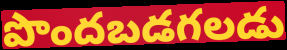
పొందబడగలడు